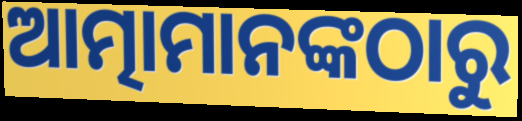
ଆତ୍ମାମାନଙ୍କଠାରୁ